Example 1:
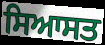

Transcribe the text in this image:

ਸਿਆਸਤ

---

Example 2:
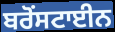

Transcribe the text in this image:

ਬਰੋਂਸਟਾਈਨ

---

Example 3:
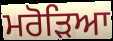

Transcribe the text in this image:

ਮਰੋੜਿਆ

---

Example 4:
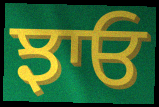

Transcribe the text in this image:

ਝਾਓ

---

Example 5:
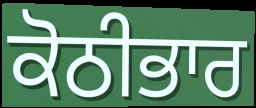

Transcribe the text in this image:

ਕੋਠੀਭਾਰ